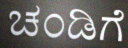
ಚಂಡಿಗೆ